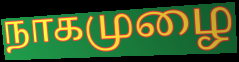
நாகமுழை